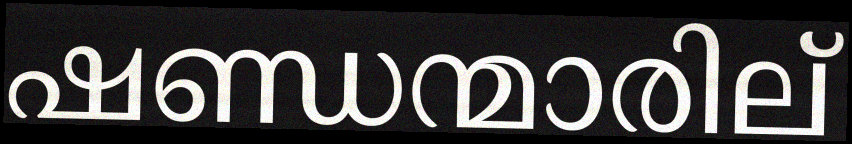
ഷണ്ഡന്മാരില്